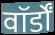
वॉर्डों